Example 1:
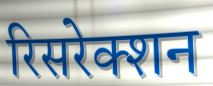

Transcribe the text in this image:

रिसरेक्शन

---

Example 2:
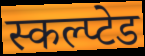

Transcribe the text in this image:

स्कल्प्टेड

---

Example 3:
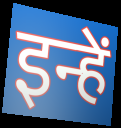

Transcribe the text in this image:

इन्‍हें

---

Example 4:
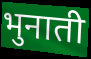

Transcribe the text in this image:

भुनाती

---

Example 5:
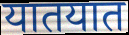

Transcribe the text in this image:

यातयात